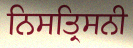
ਨਿਸਤ੍ਰਿਸਨੀ